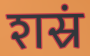
शस्रं